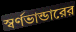
স্বর্ণভান্ডারের